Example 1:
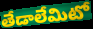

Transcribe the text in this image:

తేడాలేమిటో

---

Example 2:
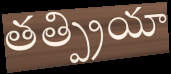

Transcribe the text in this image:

తత్ప్రియా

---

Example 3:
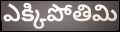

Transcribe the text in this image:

ఎక్కిపోతిమి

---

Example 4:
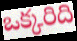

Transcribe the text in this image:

ఒక్కరిది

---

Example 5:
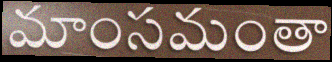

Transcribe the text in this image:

మాంసమంతా